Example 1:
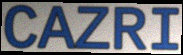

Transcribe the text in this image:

CAZRI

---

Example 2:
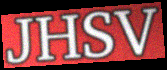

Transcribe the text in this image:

JHSV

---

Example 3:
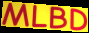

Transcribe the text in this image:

MLBD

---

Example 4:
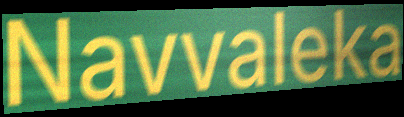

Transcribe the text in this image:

Navvaleka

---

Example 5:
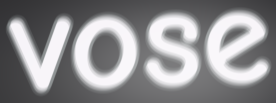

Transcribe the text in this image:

vose